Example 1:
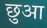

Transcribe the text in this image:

छुआ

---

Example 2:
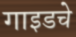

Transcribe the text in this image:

गाइडचे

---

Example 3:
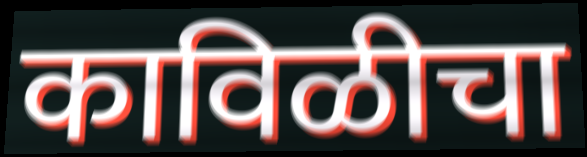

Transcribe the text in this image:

काविळीचा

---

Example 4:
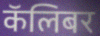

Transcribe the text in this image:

कॅलिबर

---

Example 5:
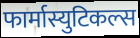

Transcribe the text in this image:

फार्मास्युटिकल्स